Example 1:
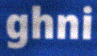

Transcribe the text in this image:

ghni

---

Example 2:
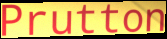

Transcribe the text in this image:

Prutton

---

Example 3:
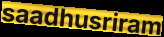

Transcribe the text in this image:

saadhusriram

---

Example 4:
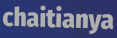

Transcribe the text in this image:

chaitianya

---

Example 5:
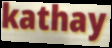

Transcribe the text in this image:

kathay